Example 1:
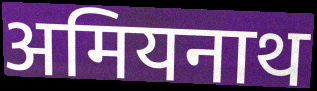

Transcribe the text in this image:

अमियनाथ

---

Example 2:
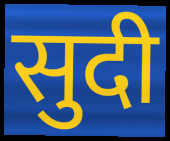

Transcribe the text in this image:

सुदी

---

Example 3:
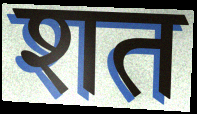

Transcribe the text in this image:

शत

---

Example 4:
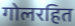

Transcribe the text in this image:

गोलरहित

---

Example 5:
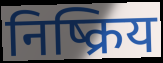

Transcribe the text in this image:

निष्क्रिय